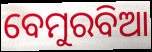
ବେମୁରବିଆ